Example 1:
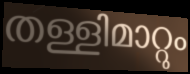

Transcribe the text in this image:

തള്ളിമാറ്റും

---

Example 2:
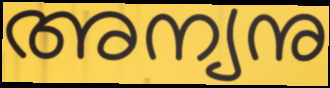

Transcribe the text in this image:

അന്യനു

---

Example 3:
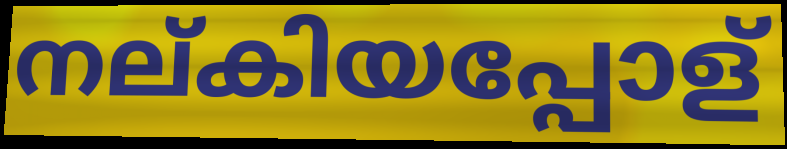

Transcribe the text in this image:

നല്കിയപ്പോള്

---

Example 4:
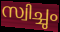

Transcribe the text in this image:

സ്വിച്ചും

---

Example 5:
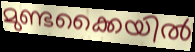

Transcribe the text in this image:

മുണ്ടക്കൈയിൽ